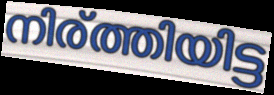
നിര്ത്തിയിട്ട